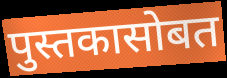
पुस्तकासोबत